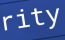
rity